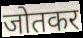
जोतकर